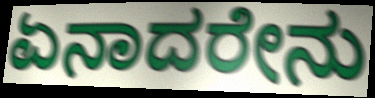
ಏನಾದರೇನು